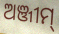
ଅଞ୍ଜୀମ୍